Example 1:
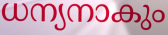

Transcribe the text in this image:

ധന്യനാകും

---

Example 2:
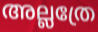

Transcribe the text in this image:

അല്ലത്രേ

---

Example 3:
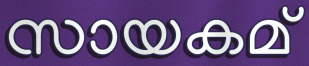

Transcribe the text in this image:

സായകമ്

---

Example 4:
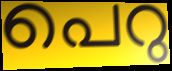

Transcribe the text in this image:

പെറു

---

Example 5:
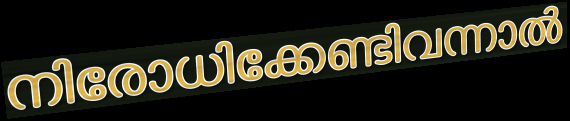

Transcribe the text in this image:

നിരോധിക്കേണ്ടിവന്നാൽ